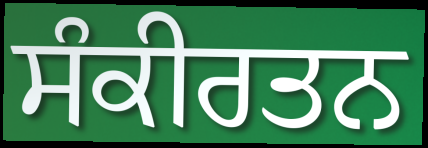
ਸੰਕੀਰਤਨ